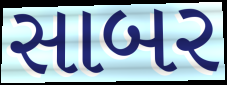
સાબર